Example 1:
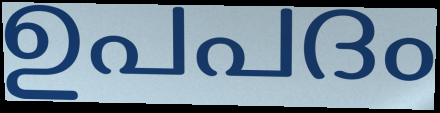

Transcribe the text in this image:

ഉപപദം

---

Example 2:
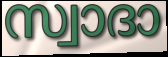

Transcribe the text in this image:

സ്വാദാ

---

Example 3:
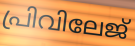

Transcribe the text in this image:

പ്രിവിലേജ്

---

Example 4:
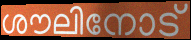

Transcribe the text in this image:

ശൗലിനോട്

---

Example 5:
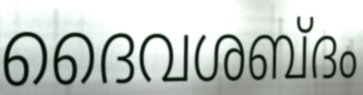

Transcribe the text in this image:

ദൈവശബ്ദം